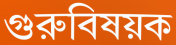
গুরুবিষয়ক